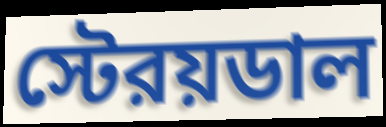
স্টেরয়ডাল